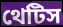
থেটিস